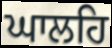
ਘਾਲਹਿ